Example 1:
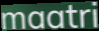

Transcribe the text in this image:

maatri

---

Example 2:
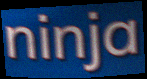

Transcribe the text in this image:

ninja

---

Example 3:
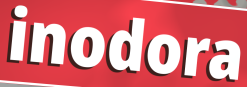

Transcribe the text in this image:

inodora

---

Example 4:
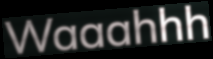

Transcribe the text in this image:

Waaahhh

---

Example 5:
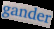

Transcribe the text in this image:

gander